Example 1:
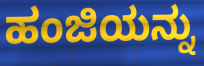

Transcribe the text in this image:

ಹಂಜಿಯನ್ನು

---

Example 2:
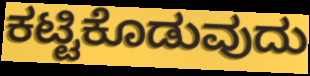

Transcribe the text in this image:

ಕಟ್ಟಿಕೊಡುವುದು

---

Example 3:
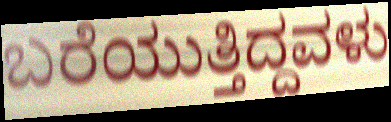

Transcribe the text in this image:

ಬರೆಯುತ್ತಿದ್ದವಳು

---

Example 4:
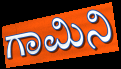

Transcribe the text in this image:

ಗಾಮಿನಿ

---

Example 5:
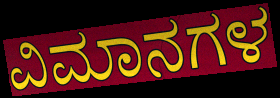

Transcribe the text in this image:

ವಿಮಾನಗಳ